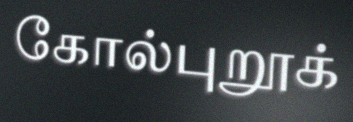
கோல்புறூக்